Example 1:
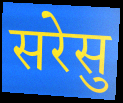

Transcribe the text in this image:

सरेसु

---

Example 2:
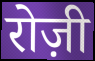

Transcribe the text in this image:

रोज़ी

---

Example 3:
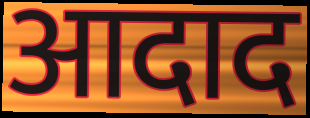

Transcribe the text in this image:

आदाद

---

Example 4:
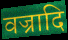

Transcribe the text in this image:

वज्रादि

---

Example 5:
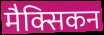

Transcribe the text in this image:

मैक्सिकन